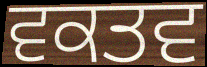
ਵਕਤਵ